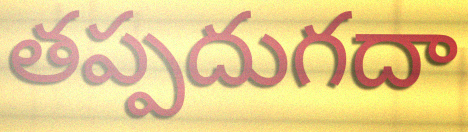
తప్పదుగదా